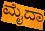
ಮೈದಾ